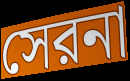
সেরনা